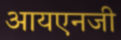
आयएनजी